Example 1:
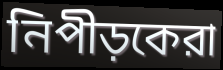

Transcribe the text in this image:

নিপীড়কেরা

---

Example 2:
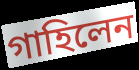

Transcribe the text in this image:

গাহিলেন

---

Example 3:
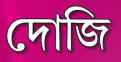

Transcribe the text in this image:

দোজি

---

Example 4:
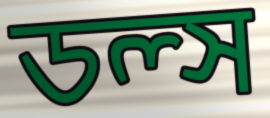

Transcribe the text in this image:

ডল্স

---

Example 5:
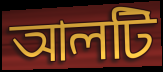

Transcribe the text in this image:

আলটি